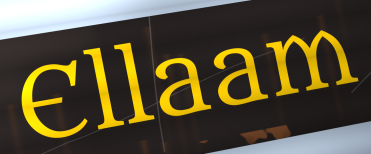
Ellaam